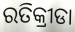
ରତିକ୍ରୀଡା